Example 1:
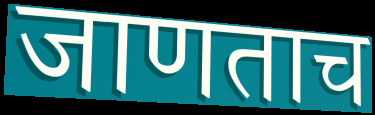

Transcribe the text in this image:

जाणताच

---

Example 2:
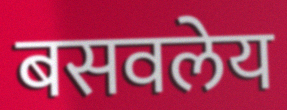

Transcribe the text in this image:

बसवलेय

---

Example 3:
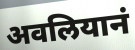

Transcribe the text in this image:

अवलियानं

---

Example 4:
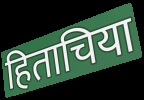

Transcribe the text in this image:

हिताचिया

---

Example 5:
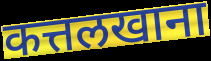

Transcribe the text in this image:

कत्तलखाना